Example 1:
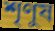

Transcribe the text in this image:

শৃণুষ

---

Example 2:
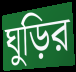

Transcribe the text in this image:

ঘুড়ির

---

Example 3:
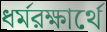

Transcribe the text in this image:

ধর্মরক্ষার্থে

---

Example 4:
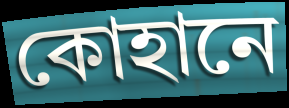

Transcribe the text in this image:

কোহানে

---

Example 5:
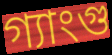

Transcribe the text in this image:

গ্যাংগু